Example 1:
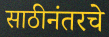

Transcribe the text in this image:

साठीनंतरचे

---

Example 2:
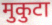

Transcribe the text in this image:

मुकुटा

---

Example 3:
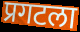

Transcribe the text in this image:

प्रगटला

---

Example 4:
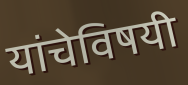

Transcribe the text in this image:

यांचेविषयी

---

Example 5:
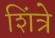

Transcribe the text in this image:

शिंत्रे